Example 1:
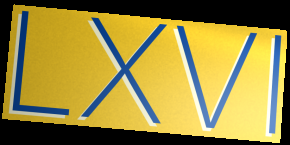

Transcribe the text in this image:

LXVI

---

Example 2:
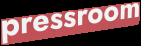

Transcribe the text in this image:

pressroom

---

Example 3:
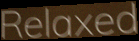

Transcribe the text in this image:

Relaxed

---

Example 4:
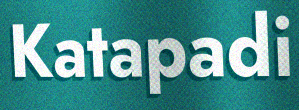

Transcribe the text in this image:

Katapadi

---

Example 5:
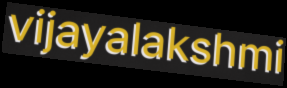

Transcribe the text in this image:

vijayalakshmi